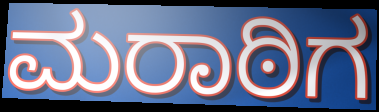
ಮರಾಠಿಗ